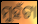
ମୁହଁଟା